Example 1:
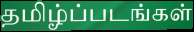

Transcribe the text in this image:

தமிழ்ப்படங்கள்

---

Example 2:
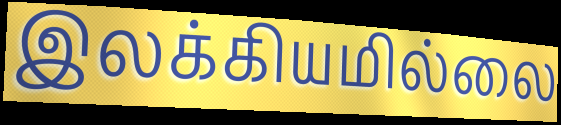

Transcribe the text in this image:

இலக்கியமில்லை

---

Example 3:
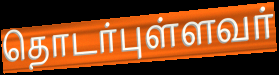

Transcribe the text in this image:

தொடர்புள்ளவர்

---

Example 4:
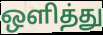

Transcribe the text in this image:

ஒளித்து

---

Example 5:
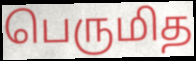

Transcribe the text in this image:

பெருமித